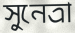
সুনেত্রা